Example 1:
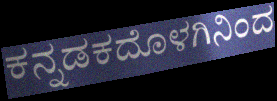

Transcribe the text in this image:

ಕನ್ನಡಕದೊಳಗಿನಿಂದ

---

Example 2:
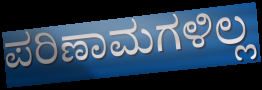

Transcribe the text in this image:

ಪರಿಣಾಮಗಳಿಲ್ಲ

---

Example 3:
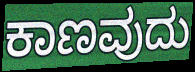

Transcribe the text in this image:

ಕಾಣವುದು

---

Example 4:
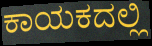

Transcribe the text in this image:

ಕಾಯಕದಲ್ಲಿ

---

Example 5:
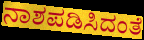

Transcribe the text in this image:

ನಾಶಪಡಿಸಿದಂತೆ